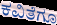
ಕವಿತೆಗೂ